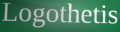
Logothetis